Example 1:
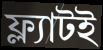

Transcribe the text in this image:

ফ্ল্যাটই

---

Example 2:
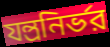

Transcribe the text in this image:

যন্ত্রনির্ভর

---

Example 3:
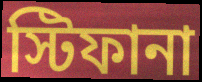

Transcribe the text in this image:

স্টিফানা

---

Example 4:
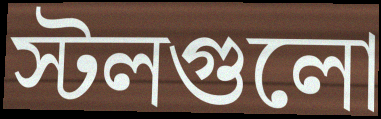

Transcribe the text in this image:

স্টলগুলো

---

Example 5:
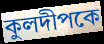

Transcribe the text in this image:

কুলদীপকে